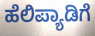
ಹೆಲಿಪ್ಯಾಡಿಗೆ